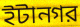
ইটানগর